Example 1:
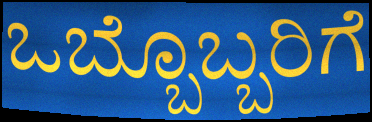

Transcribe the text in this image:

ಒಬ್ಬೊಬ್ಬರಿಗೆ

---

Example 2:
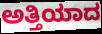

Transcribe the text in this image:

ಅತ್ತಿಯಾದ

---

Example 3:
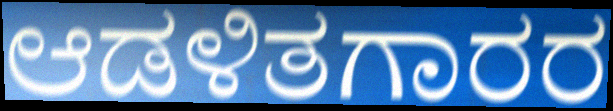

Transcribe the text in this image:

ಆಡಳಿತಗಾರರ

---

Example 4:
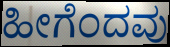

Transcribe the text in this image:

ಹೀಗೆಂದವು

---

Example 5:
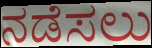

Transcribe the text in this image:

ನಡೆಸಲು